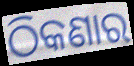
ଠିକଣାର